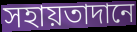
সহায়তাদানে